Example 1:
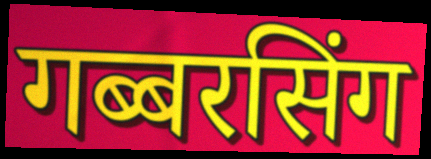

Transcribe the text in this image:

गब्बरसिंग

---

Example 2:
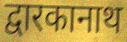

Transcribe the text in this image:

द्वारकानाथ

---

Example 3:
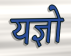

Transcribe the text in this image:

यज्ञो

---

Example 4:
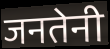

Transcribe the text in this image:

जनतेनी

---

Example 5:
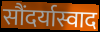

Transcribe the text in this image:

सौंदर्यास्वाद